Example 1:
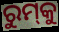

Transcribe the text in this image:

ରୁମ୍‍କୁ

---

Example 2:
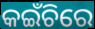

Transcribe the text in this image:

କଇଁଚିରେ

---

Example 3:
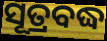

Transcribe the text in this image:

ସୂତ୍ରବଦ୍ଧ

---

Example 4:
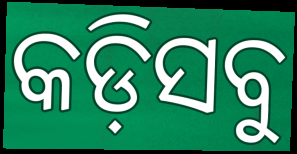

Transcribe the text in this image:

କଡ଼ିସବୁ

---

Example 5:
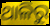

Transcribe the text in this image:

ଥାଳିରୁ